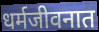
धर्मजीवनात